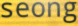
seong